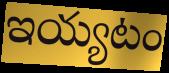
ఇయ్యటం